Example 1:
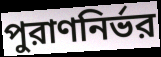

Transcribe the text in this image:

পুরাণনির্ভর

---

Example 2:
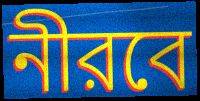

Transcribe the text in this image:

নীরবে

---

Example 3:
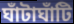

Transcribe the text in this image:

ঘাঁটাঘাঁটি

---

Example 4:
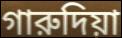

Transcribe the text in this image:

গারুদিয়া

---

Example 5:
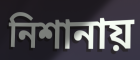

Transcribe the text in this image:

নিশানায়